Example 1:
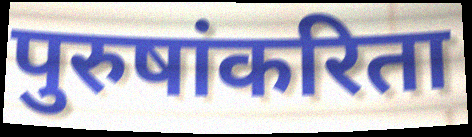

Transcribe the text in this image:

पुरुषांकरिता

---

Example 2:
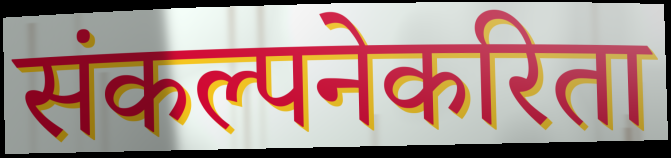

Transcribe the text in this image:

संकल्पनेकरिता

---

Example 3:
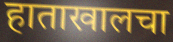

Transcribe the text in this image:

हाताखालचा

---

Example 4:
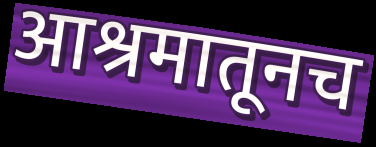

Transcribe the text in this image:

आश्रमातूनच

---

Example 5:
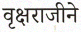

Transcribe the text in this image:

वृक्षराजीने